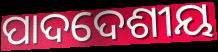
ପାଦଦେଶୀୟ